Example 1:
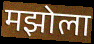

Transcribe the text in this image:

मझोला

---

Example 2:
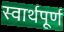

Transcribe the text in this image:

स्वार्थपूर्ण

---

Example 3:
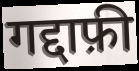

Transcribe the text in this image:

गद्दाफ़ी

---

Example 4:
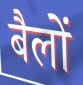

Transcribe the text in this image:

बैलों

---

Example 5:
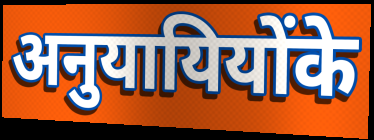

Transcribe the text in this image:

अनुयायियोंके